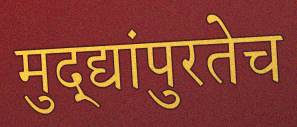
मुद्द्यांपुरतेच